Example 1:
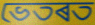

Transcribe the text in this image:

ভেতৰত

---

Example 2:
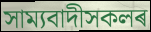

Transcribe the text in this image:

সাম্যবাদীসকলৰ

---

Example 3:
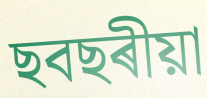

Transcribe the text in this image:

ছবছৰীয়া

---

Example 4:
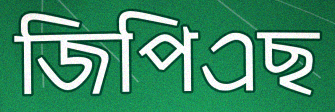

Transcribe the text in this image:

জিপিএছ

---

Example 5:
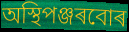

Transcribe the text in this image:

অস্থিপঞ্জৰবোৰ